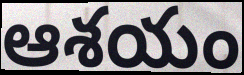
ఆశయం